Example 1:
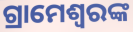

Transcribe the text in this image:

ଗ୍ରାମେଶ୍ୱରଙ୍କ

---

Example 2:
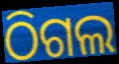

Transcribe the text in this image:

ଠିଗଲ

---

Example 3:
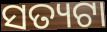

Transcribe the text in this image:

ସତ୍ୟଟା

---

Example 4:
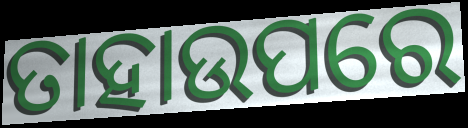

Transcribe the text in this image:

ତାହାଉପରେ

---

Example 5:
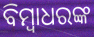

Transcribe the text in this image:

ବିମ୍ବାଧରଙ୍କ